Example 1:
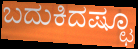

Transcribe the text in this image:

ಬದುಕಿದಷ್ಟೂ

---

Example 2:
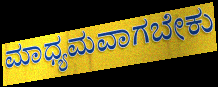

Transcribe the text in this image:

ಮಾಧ್ಯಮವಾಗಬೇಕು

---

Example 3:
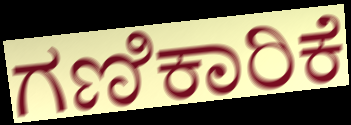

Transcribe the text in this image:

ಗಣಿಕಾರಿಕೆ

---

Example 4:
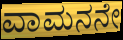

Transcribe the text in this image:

ವಾಮನನೇ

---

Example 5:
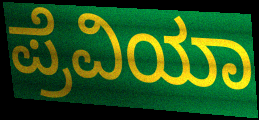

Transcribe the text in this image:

ಪ್ರೆವಿಯಾ